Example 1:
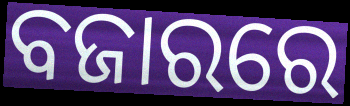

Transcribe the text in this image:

ବଜାରରେ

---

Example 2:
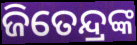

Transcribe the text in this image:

ଜିତେନ୍ଦ୍ରଙ୍କ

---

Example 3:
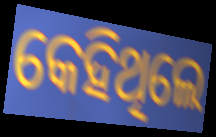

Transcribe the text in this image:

କେହିଥିଲେ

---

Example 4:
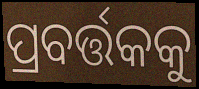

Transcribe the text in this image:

ପ୍ରବର୍ତ୍ତକକୁ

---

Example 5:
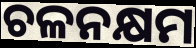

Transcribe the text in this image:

ଚଳନକ୍ଷମ